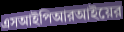
এসআইপিআরআইয়ের